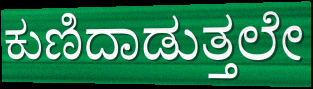
ಕುಣಿದಾಡುತ್ತಲೇ